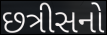
છત્રીસનો